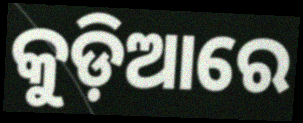
କୁଡ଼ିଆରେ